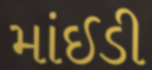
માંઈડી